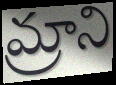
మ్రాని